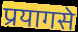
प्रयागसे